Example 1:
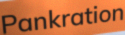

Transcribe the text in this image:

Pankration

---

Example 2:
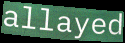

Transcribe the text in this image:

allayed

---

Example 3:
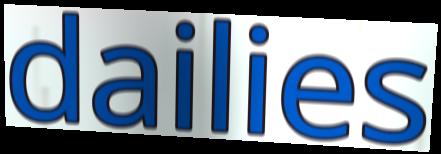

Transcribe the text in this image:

dailies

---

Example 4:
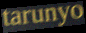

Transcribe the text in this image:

tarunyo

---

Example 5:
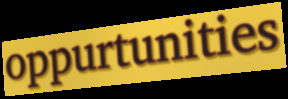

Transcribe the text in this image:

oppurtunities